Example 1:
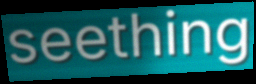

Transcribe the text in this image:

seething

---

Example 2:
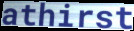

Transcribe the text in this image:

athirst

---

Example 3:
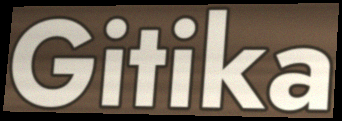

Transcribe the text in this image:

Gitika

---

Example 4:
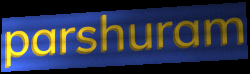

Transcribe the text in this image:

parshuram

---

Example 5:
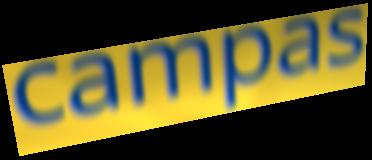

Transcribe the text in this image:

campas